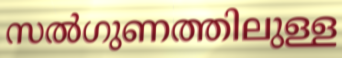
സൽഗുണത്തിലുള്ള